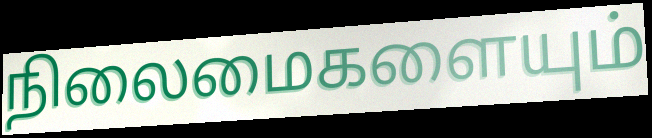
நிலைமைகளையும்